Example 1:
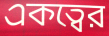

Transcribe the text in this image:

একত্বের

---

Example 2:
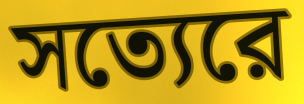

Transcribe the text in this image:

সত্যেরে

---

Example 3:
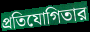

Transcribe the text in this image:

প্রতিযোগিতার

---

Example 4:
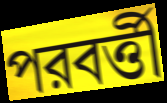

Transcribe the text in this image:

পরবর্ত্তী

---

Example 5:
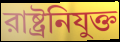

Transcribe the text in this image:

রাষ্ট্রনিযুক্ত